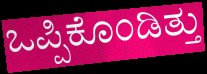
ಒಪ್ಪಿಕೊಂಡಿತ್ತು